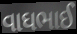
વાઘભાઈ